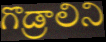
గొడ్రాలిని